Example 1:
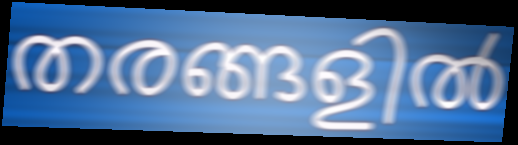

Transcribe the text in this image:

തരങ്ങളിൽ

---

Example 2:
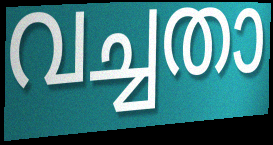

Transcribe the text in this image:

വച്ചതാ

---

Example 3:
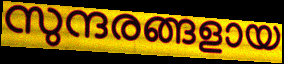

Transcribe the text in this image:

സുന്ദരങ്ങളായ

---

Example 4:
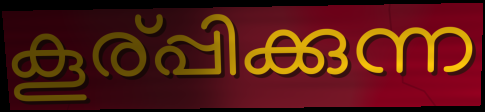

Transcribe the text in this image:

കൂര്പ്പിക്കുന്ന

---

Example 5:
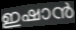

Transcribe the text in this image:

ഇഷാൻ